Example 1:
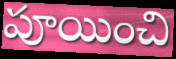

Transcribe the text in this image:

పూయించి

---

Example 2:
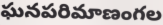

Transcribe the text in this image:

ఘనపరిమాణంగల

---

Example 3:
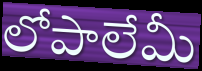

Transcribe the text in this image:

లోపాలేమీ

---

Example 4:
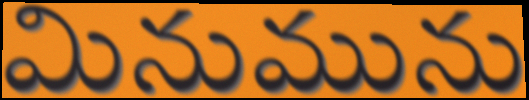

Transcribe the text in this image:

మినుమును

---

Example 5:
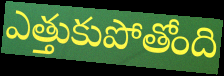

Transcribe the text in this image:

ఎత్తుకుపోతోంది